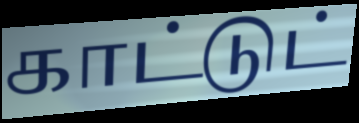
காட்டுட்